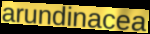
arundinacea